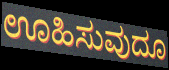
ಊಹಿಸುವುದೂ